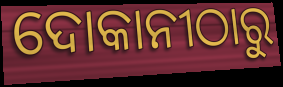
ଦୋକାନୀଠାରୁ